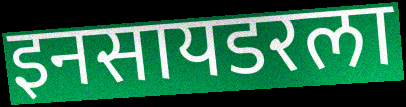
इनसायडरला